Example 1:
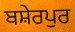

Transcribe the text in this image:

ਬਸ਼ੇਰਪੁਰ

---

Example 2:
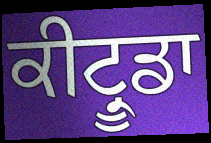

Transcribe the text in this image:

ਕੀਟ੍ਰੂਡਾ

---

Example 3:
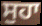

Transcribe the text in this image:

ਸੁਹਾ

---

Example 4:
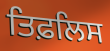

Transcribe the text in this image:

ਤਿਫ਼ਲਿਸ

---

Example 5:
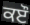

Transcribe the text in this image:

ਕੲੌ